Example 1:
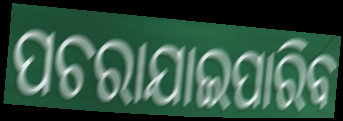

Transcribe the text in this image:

ପଚରାଯାଇପାରିବ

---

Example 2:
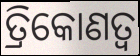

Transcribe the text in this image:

ତ୍ରିକୋଣତ୍ଵ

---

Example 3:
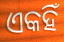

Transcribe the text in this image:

ଏକହିଁ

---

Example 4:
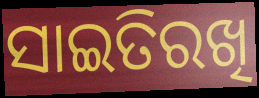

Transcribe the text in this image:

ସାଇତିରଖି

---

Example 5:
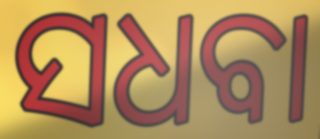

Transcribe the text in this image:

ସଧବା